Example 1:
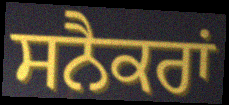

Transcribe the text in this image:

ਸਨੈਕਰਾਂ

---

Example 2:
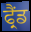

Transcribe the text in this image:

ਫ੍ਰੈਂਡ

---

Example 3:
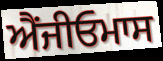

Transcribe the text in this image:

ਐਂਜੀਓਮਾਸ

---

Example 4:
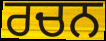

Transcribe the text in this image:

ਰਚਨ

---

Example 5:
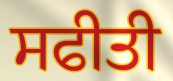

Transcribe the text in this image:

ਸਫੀਤੀ